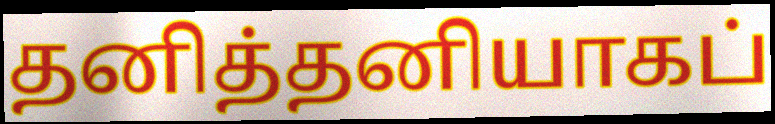
தனித்தனியாகப்